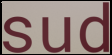
sud